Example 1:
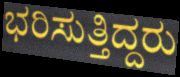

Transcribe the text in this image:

ಭರಿಸುತ್ತಿದ್ದರು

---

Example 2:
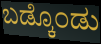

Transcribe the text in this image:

ಬಡ್ಕೊಂಡು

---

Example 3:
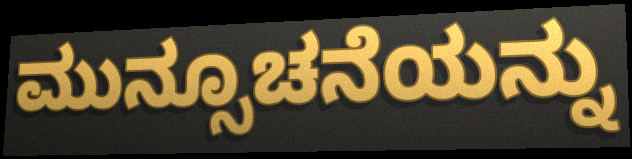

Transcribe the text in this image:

ಮುನ್ಸೂಚನೆಯನ್ನು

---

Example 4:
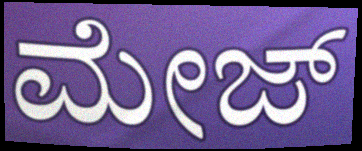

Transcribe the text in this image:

ಮೇಜ್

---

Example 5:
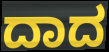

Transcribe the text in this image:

ದಾದ